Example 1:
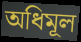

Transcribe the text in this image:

অধিমূল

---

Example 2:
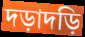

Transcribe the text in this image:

দড়াদড়ি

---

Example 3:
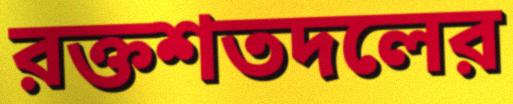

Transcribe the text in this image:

রক্তশতদলের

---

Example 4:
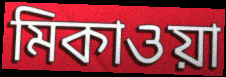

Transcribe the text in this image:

মিকাওয়া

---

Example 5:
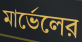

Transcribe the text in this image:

মার্ভেলের